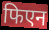
फिएन